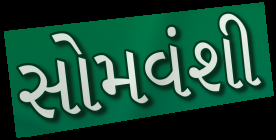
સોમવંશી